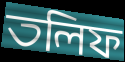
তলিফ